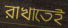
রাখাতেই